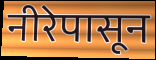
नीरेपासून